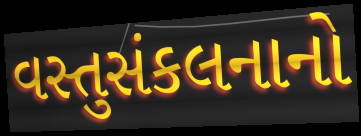
વસ્તુસંકલનાનો